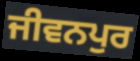
ਜੀਵਨਪੁਰ